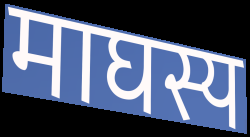
माघस्य